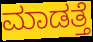
ಮಾಡತ್ತೆ